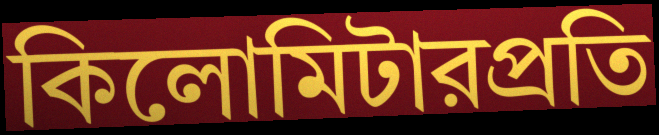
কিলোমিটারপ্রতি